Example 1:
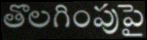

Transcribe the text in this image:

తొలగింపుపై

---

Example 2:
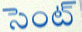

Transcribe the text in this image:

సెంట్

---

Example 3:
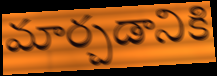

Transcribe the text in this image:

మార్చడానికి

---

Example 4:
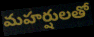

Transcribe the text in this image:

మహర్షులతో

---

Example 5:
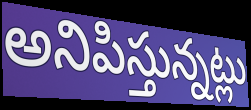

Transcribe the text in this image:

అనిపిస్తున్నట్లు